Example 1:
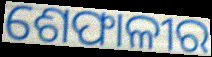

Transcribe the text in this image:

ଶେଫାଳୀର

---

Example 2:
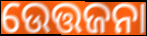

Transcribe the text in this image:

ଉେତ୍ତଜନା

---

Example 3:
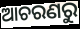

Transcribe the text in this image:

ଆଚରଣରୁ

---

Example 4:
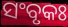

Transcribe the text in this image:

ସଂବୃକଃ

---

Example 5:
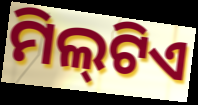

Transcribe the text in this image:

ମିଲ୍‌ଟିଏ